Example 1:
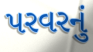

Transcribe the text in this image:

પરવરનું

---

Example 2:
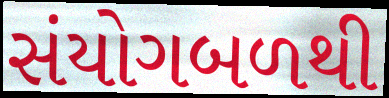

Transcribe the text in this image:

સંયોગબળથી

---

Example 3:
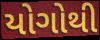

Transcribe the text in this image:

યોગોથી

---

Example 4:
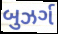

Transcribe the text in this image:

બુઝર્ગ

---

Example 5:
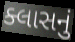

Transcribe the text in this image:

ક્લાસનું